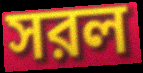
সরল